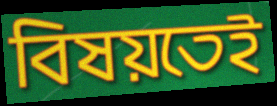
বিষয়তেই